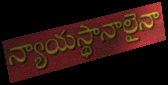
న్యాయస్థానాలైనా